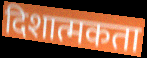
दिशात्मकता